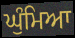
ਘੁੰਮਿਆ